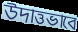
উদাত্তভাবে